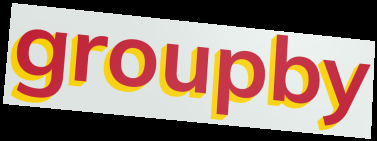
groupby